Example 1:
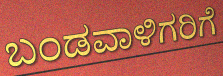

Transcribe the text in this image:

ಬಂಡವಾಳಿಗರಿಗೆ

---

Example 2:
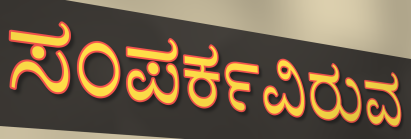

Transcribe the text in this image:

ಸಂಪರ್ಕವಿರುವ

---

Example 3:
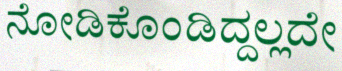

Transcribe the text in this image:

ನೋಡಿಕೊಂಡಿದ್ದಲ್ಲದೇ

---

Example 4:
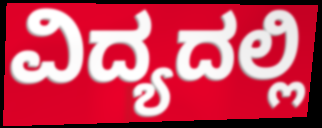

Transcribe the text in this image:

ವಿದ್ಯದಲ್ಲಿ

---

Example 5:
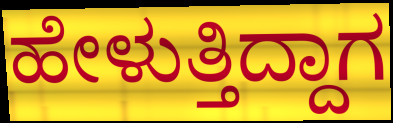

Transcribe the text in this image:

ಹೇಳುತ್ತಿದ್ದಾಗ